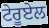
ਟੇਰੂਏਲ